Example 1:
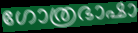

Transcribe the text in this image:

ഗോത്രഭാഷാ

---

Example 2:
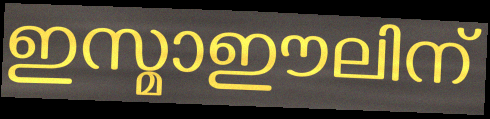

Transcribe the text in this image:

ഇസ്മാഈലിന്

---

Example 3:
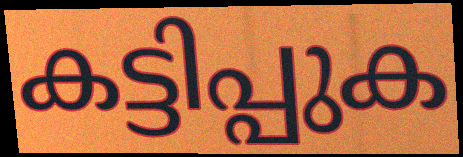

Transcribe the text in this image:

കട്ടിപ്പുക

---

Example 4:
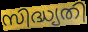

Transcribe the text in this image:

സിദ്ധ്യതി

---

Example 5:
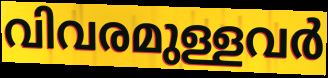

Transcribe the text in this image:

വിവരമുള്ളവർ